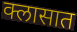
क्लासात